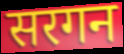
सरगन